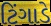
ટિંગાડે